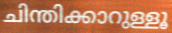
ചിന്തിക്കാറുള്ളൂ